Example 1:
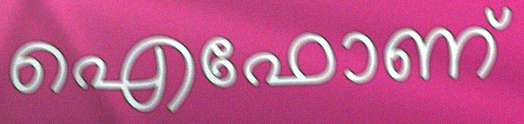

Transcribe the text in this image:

ഐഫോണ്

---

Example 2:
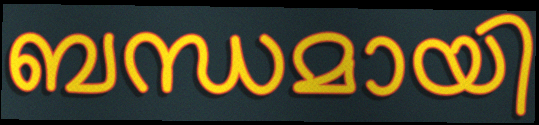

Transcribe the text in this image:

ബന്ധമായി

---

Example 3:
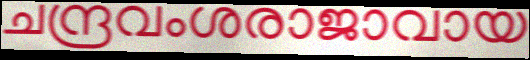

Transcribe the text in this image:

ചന്ദ്രവംശരാജാവായ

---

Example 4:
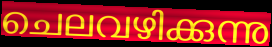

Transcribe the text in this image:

ചെലവഴിക്കുന്നു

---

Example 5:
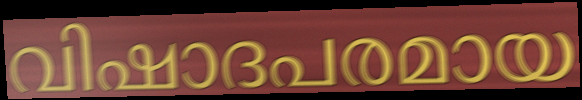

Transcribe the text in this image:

വിഷാദപരമായ